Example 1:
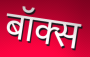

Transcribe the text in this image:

बॉक्‍स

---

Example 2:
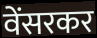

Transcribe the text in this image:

वेंसरकर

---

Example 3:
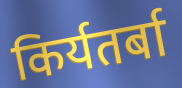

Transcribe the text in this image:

किर्यतर्बा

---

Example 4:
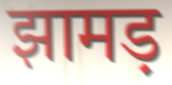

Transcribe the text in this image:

झामड़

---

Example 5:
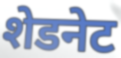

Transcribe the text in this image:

शेडनेट